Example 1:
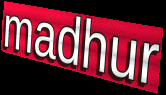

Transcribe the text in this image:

madhur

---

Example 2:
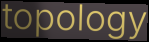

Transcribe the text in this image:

topology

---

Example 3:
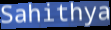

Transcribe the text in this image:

Sahithya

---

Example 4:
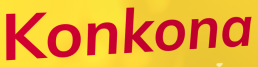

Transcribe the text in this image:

Konkona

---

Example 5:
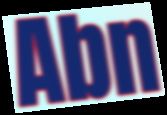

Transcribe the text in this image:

Abn